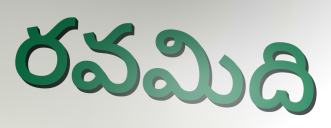
రవమిది